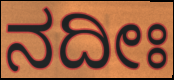
ನದೀಃ